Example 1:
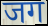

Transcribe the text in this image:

जग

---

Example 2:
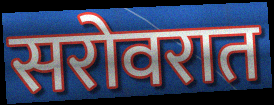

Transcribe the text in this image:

सरोवरात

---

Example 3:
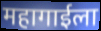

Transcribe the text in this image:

महागाईला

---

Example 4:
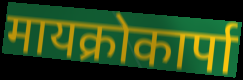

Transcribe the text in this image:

मायक्रोकार्पा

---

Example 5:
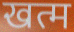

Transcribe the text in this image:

खत्म